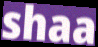
shaa